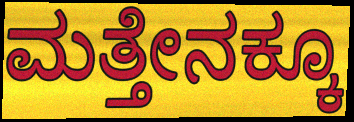
ಮತ್ತೇನಕ್ಕೂ